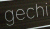
gechi